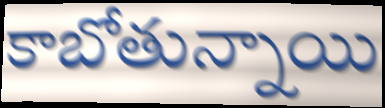
కాబోతున్నాయి